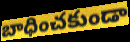
బాధించకుండా